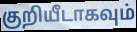
குறியீடாகவும்